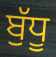
ਬੁੱਧੂ